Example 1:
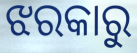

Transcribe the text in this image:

ଝରକାରୁ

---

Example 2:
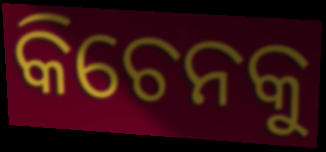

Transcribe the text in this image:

କିଚେନକୁ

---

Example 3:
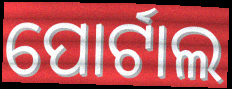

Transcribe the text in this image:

ପୋର୍ଟାଲ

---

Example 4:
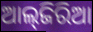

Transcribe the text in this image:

ଆଲ୍‌ଜିରିଆ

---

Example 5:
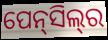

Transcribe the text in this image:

ପେନ୍‍ସିଲ୍‍ର